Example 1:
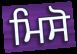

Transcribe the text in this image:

ਮਿਸੋ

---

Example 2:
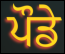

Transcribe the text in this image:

ਪੌਡੇ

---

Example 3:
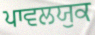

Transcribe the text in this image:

ਪਾਵਲਯੁਕ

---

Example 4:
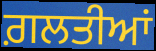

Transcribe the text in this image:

ਗ਼ਲਤੀਆਂ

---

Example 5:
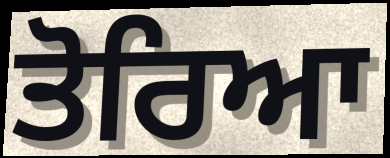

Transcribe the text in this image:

ਤੋਰਿਆ